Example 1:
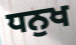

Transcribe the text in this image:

ਧਨੁਖ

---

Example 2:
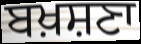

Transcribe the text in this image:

ਬਖ਼ਸ਼ਣਾ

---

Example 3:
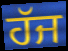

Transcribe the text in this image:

ਹੱਜ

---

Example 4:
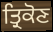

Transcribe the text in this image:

ਤ੍ਰਿਕੋਣ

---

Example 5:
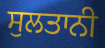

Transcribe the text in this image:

ਸੁਲਤਾਨੀ